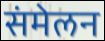
संमेलन